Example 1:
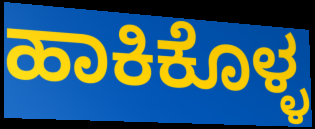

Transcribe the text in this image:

ಹಾಕಿಕೊಳ್ಳ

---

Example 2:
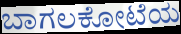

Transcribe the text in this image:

ಬಾಗಲಕೋಟೆಯ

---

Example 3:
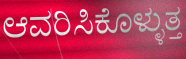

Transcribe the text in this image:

ಆವರಿಸಿಕೊಳ್ಳುತ್ತ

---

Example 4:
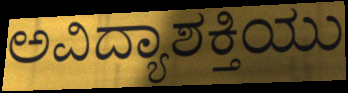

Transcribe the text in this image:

ಅವಿದ್ಯಾಶಕ್ತಿಯು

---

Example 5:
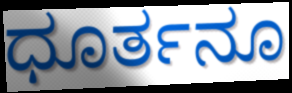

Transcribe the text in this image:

ಧೂರ್ತನೂ